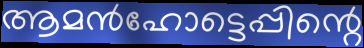
ആമൻഹോട്ടെപ്പിന്റെ